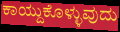
ಕಾಯ್ದುಕೊಳ್ಳುವುದು